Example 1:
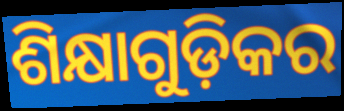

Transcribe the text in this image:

ଶିକ୍ଷାଗୁଡ଼ିକର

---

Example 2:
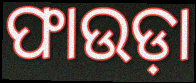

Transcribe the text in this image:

ଫାଉଡ଼ା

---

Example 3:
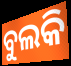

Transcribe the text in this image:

ବୁଲକି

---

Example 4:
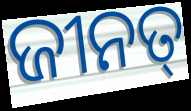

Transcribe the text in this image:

ଜୀନତ୍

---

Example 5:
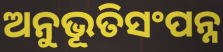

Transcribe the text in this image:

ଅନୁଭୂତିସଂପନ୍ନ